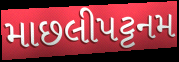
માછલીપટ્ટનમ